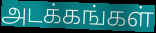
அடக்கங்கள்